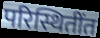
परिस्थितींत